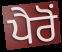
ਪੈਰੋਂ